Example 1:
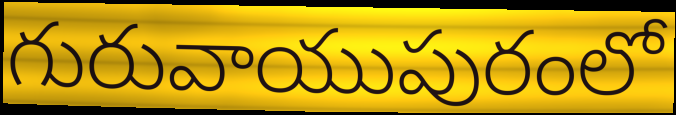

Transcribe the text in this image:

గురువాయుపురంలో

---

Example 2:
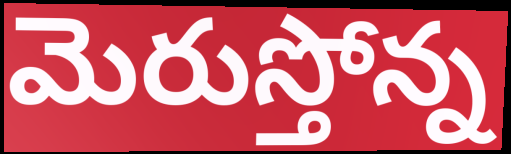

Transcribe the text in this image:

మెరుస్తోన్న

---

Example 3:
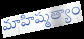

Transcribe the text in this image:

మాహిష్మత్యాం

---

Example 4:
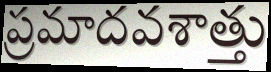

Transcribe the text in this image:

ప్రమాదవశాత్తు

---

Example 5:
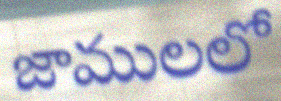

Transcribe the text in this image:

జాములలో